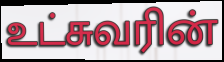
உட்சுவரின்